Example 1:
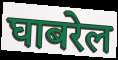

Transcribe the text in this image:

घाबरेल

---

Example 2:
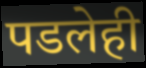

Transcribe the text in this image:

पडलेही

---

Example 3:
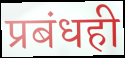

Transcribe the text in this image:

प्रबंधही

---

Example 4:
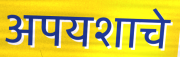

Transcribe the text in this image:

अपयशाचे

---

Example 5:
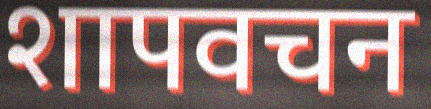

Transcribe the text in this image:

शापवचन